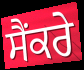
ਸੈਂਕਰੇ